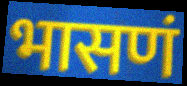
भासणं